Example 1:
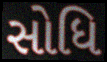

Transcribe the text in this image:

સોધિ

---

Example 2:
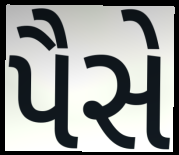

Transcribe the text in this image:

પૈસે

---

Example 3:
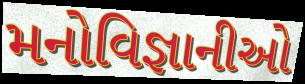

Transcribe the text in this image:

મનોવિજ્ઞાનીઓ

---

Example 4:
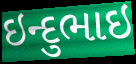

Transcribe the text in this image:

ઇન્દુભાઇ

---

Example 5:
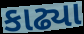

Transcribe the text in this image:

કાઢ્યા